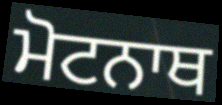
ਮੋਟਨਾਥ